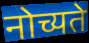
नोच्यते